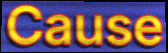
Cause